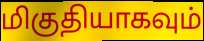
மிகுதியாகவும்